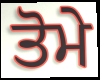
ਤੋਮੇ